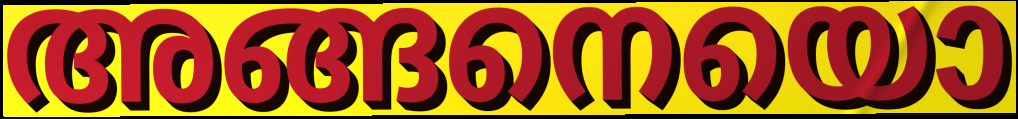
അങ്ങനെയൊ